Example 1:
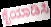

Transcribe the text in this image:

ಕೈಯಾಡಿಸಿ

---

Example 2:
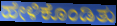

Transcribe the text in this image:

ಹೇಳಿಕೊಂಡಿತು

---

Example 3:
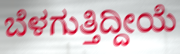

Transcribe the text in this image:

ಬೆಳಗುತ್ತಿದ್ದೀಯೆ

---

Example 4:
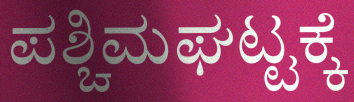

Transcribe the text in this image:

ಪಶ್ಚಿಮಘಟ್ಟಕ್ಕೆ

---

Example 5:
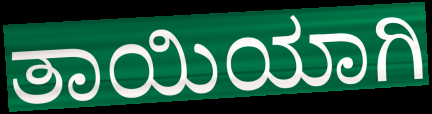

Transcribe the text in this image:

ತಾಯಿಯಾಗಿ